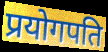
प्रयोगपति